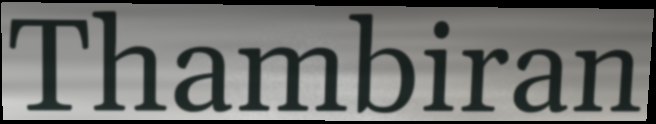
Thambiran